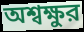
অশ্বক্ষুর